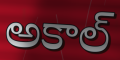
అకాల్